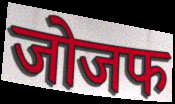
जोजफ